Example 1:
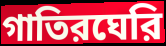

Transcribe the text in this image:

গাতিরঘেরি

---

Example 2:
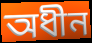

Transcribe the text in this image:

অধীন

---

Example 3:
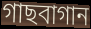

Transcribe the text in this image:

গাছবাগান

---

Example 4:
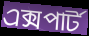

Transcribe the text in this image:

এক্সপার্ট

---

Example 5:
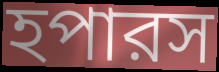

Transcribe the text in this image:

হপারস